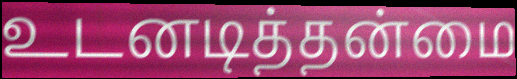
உடனடித்தன்மை